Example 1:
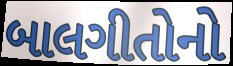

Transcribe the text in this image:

બાલગીતોનો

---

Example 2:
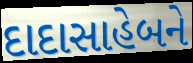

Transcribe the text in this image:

દાદાસાહેબને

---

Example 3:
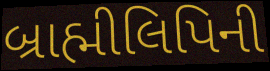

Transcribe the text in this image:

બ્રાહ્મીલિપિની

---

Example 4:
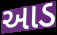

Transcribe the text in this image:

આડ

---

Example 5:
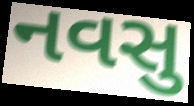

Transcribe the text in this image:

નવસુ